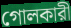
গোলকারী